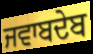
ਜਵਾਬਦੇਬ